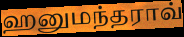
ஹனுமந்தராவ்